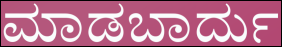
ಮಾಡಬಾರ್ದು